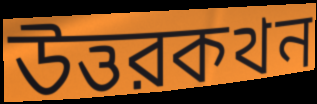
উত্তরকথন